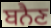
ਬਨੈਣ